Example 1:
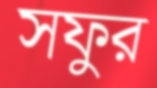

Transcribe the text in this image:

সফুর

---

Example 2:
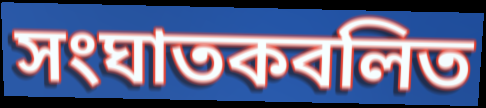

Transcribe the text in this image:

সংঘাতকবলিত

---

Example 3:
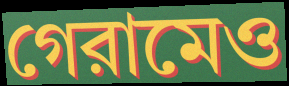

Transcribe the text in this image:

গেরামেও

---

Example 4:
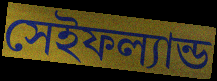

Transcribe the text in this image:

সেইফল্যান্ড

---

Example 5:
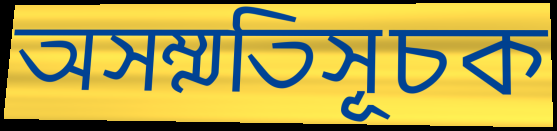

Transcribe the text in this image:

অসম্মতিসূচক